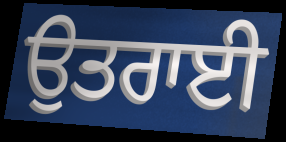
ਉਤਰਾਈ